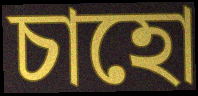
চাহো